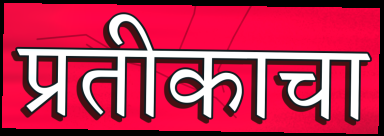
प्रतीकाचा